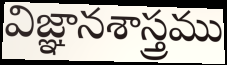
విజ్ఞానశాస్త్రము